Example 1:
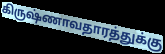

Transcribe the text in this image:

கிருஷ்ணாவதாரத்துக்கு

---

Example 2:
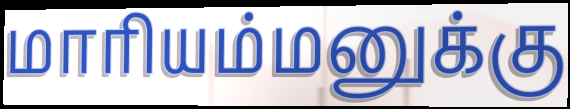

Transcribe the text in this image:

மாரியம்மனுக்கு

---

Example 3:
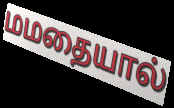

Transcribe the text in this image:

மமதையால்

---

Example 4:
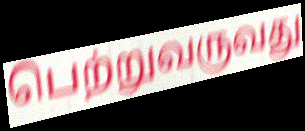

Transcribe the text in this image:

பெற்றுவருவது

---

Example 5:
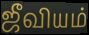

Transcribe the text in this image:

ஜீவியம்